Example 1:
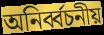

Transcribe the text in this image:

অনির্ব্বচনীয়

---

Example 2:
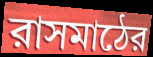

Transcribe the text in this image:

রাসমাঠের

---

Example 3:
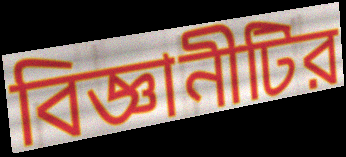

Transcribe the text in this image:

বিজ্ঞানীটির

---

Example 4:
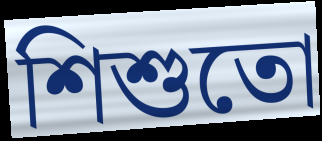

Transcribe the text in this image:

শিশুতো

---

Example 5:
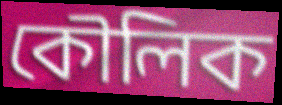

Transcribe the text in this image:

কৌলিক